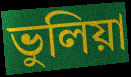
ভুলিয়া